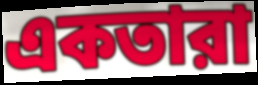
একতারা